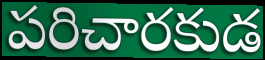
పరిచారకుడ